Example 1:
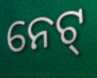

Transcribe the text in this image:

ନେଟ୍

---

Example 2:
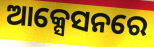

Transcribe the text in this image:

ଆକ୍ସେସନରେ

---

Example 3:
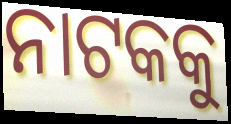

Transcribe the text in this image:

ନାଟକକୁ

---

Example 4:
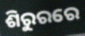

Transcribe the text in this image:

ଶିରୁରରେ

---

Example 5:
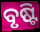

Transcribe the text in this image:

ବୃଷ୍ଟି